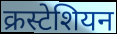
क्रस्टेशियन